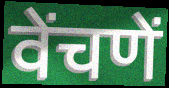
वेंचणें